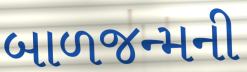
બાળજન્મની